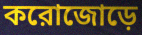
করোজোড়ে